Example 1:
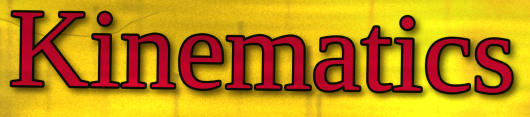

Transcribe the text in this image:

Kinematics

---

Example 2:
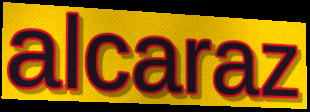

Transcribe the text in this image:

alcaraz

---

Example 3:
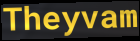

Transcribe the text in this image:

Theyvam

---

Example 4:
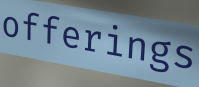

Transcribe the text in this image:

offerings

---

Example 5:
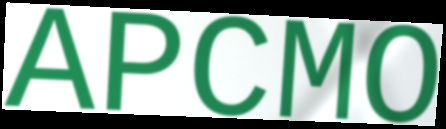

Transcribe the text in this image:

APCMO